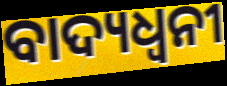
ବାଦ୍ୟଧ୍ୱନୀ